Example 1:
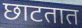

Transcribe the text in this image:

छाटतात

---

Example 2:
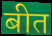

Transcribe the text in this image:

बीत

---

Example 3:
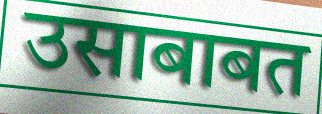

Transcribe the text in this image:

उसाबाबत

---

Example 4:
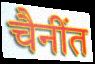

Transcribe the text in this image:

चैनींत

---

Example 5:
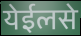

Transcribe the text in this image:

येईलसे